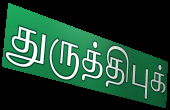
துருத்திபுக்